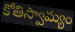
కోతిస్వామ్యం